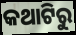
କଥାଟିରୁ